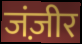
जंज़ीर